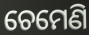
ଚେମେଣି